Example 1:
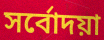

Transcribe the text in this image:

সৰ্বোদয়া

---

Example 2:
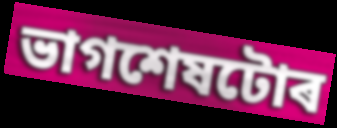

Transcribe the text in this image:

ভাগশেষটোৰ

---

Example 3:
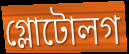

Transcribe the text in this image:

গ্লোটোলগ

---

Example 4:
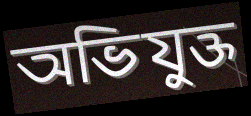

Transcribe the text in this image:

অভিযুক্ত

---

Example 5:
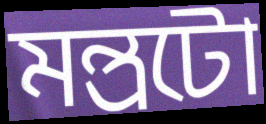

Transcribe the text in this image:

মন্ত্ৰটো